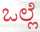
ಒಲ್ಲೆ